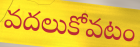
వదలుకోవటం